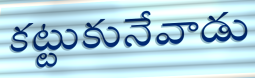
కట్టుకునేవాడు